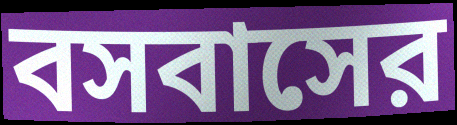
বসবাসের